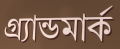
গ্র্যান্ডমার্ক